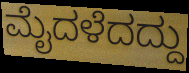
ಮೈದಳೆದದ್ದು